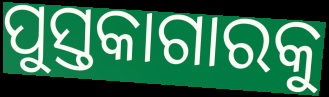
ପୁସ୍ତକାଗାରକୁ